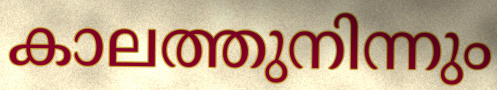
കാലത്തുനിന്നും